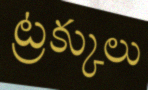
ట్రక్కులు